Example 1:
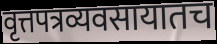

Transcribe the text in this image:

वृत्तपत्रव्यवसायातच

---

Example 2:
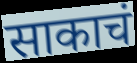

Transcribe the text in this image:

साकाचं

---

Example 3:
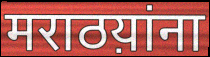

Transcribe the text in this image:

मराठय़ांना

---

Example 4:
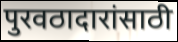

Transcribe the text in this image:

पुरवठादारांसाठी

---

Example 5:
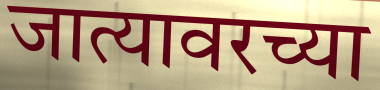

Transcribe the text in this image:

जात्यावरच्या